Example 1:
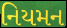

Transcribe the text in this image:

નિયમન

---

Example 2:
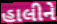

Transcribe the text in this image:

હાલીને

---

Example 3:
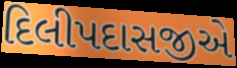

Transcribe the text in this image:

દિલીપદાસજીએ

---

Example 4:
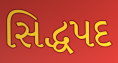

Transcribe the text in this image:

સિદ્ધપદ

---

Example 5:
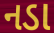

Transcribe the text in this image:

નડા